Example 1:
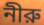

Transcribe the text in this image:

নীরু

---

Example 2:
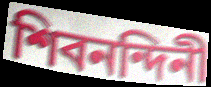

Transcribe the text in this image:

শিবনন্দিনী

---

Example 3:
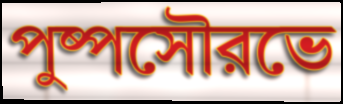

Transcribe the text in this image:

পুষ্পসৌরভে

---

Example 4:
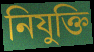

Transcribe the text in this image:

নিযুক্তি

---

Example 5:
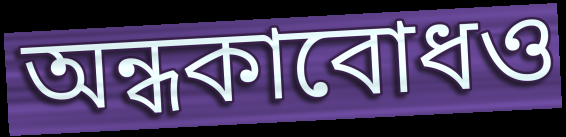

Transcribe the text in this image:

অন্ধকাবোধও